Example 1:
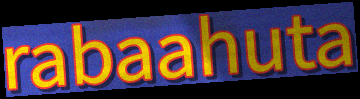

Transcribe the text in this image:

rabaahuta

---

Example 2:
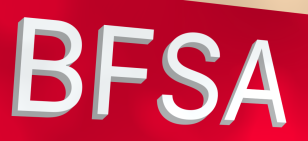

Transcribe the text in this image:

BFSA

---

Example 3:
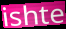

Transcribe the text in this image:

ishte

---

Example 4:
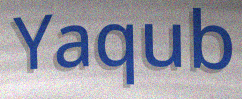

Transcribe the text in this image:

Yaqub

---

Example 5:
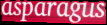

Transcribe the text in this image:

asparagus